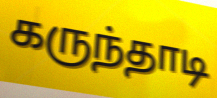
கருந்தாடி